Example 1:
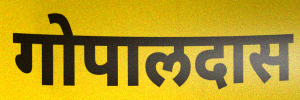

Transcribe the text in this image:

गोपालदास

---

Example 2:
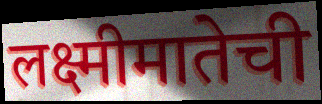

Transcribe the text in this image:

लक्ष्मीमातेची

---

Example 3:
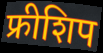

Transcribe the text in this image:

फ्रीशिप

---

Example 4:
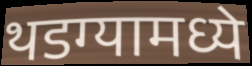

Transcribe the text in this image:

थडग्यामध्ये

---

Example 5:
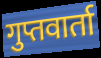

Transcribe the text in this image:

गुप्तवार्ता